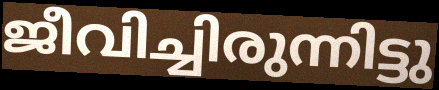
ജീവിച്ചിരുന്നിട്ടു